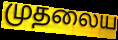
முதலைய